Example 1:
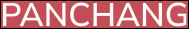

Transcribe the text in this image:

PANCHANG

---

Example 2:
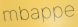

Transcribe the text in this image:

mbappe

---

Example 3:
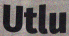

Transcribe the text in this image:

Utlu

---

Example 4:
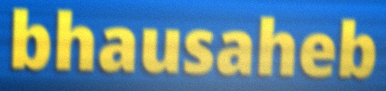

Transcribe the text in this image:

bhausaheb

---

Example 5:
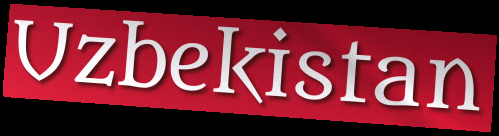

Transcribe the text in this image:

Uzbekistan